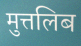
मुत्तलिब